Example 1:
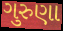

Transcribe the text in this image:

ગુરુણા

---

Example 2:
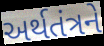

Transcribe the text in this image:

અર્થતંત્રને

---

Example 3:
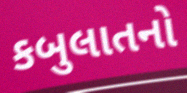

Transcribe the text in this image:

કબુલાતનો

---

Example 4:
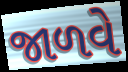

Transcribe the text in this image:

જાળવે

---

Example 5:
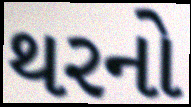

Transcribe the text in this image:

થરનો